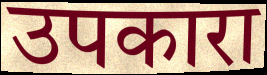
उपकारा